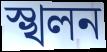
স্খলন